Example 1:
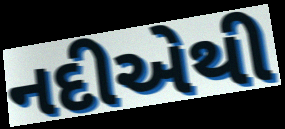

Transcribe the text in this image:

નદીએથી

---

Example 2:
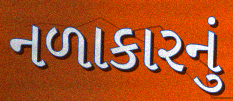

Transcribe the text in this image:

નળાકારનું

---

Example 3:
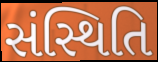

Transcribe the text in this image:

સંસ્થિતિ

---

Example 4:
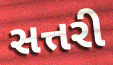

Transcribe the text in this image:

સત્તરી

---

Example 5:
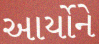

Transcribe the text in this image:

આર્યોને